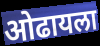
ओढायला